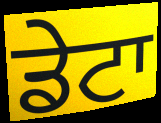
ਡੇਟਾ